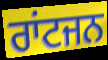
ਰਾਂਟਜਨ